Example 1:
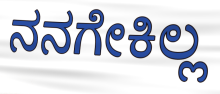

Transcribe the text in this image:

ನನಗೇಕಿಲ್ಲ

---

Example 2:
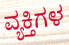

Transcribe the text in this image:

ವ್ಯಕ್ತಿಗಳ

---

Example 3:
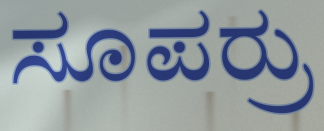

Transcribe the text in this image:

ಸೂಪರ್ರು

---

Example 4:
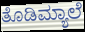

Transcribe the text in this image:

ತೊಡಿಮ್ಯಾಲೆ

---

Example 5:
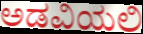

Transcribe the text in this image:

ಅಡವಿಯಲಿ